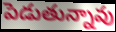
పెడుతున్నావు